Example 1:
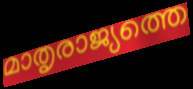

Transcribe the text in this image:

മാതൃരാജ്യത്തെ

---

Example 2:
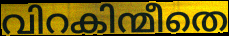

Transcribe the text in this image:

വിറകിന്മീതെ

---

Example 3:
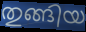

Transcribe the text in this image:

തുങ്ങിയ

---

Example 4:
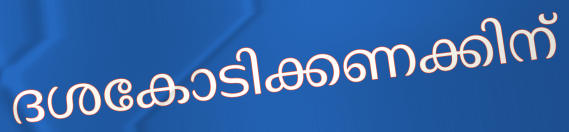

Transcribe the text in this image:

ദശകോടിക്കണക്കിന്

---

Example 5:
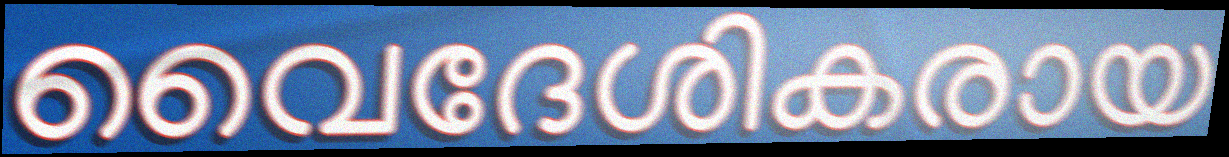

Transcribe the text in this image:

വൈദേശികരായ